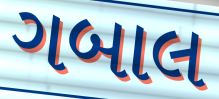
ગબાલ